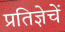
प्रतिज्ञेचें